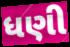
ધણી